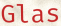
Glas